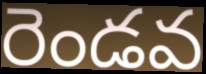
రెండవ